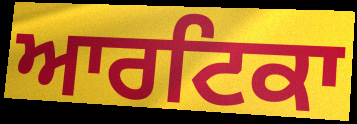
ਆਰਟਿਕਾ